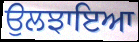
ਉਲਝਾਇਆ